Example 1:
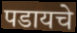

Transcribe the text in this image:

पडायचे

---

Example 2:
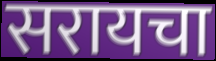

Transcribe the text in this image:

सरायचा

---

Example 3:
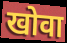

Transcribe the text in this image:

खोवा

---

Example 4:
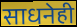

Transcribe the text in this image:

साधनेही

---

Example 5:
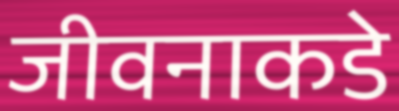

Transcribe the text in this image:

जीवनाकडे